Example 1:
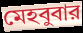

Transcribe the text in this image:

মেহবুবার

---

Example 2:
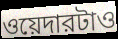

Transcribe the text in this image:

ওয়েদারটাও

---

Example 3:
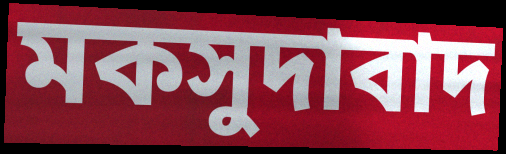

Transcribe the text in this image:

মকসুদাবাদ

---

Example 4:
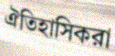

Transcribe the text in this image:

ঐতিহাসিকরা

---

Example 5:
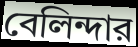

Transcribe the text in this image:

বেলিন্দার